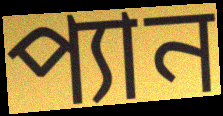
প্যান